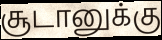
சூடானுக்கு